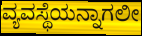
ವ್ಯವಸ್ಥೆಯನ್ನಾಗಲೀ